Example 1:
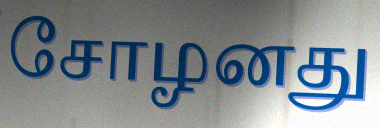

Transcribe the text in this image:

சோழனது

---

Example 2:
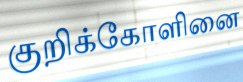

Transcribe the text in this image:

குறிக்கோளினை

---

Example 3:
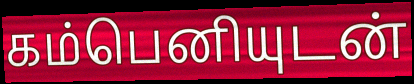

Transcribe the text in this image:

கம்பெனியுடன்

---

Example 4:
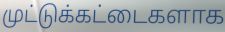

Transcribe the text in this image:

முட்டுக்கட்டைகளாக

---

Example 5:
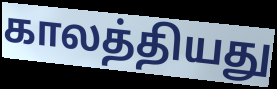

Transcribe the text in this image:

காலத்தியது